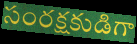
సంరక్షకుడిగా